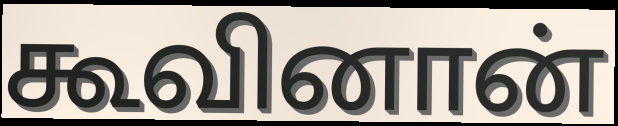
கூவினான்